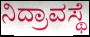
ನಿದ್ರಾವಸ್ಥೆ